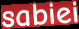
sabiei